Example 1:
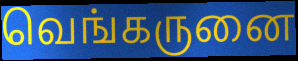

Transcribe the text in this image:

வெங்கருனை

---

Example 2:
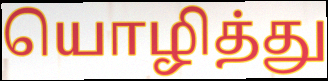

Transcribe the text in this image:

யொழித்து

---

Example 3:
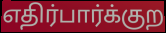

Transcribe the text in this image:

எதிர்பார்க்குற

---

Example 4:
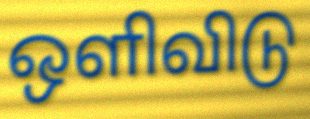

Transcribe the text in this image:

ஒளிவிடு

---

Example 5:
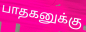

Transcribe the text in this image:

பாதகனுக்கு